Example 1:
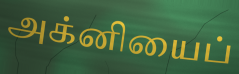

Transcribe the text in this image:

அக்னியைப்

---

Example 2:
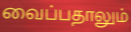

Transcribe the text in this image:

வைப்பதாலும்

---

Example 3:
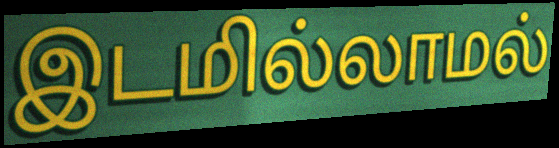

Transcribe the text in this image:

இடமில்லாமல்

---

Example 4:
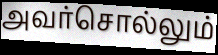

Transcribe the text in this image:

அவர்சொல்லும்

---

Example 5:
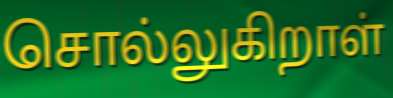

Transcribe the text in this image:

சொல்லுகிறாள்